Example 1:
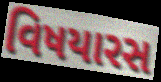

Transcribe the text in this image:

વિષયારસ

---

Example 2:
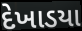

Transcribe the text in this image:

દેખાડયા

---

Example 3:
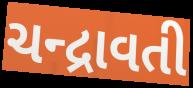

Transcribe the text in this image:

ચન્દ્રાવતી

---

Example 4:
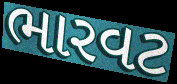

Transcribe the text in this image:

ભારવટ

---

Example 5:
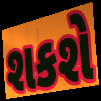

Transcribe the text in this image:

શકશે